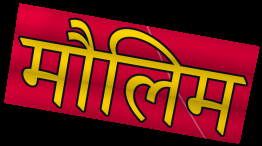
मौलिम